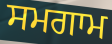
ਸਮਗਾਮ